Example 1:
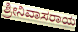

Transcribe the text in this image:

ಶ್ರೀನಿವಾಸರಾಯ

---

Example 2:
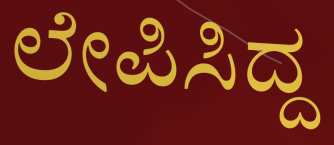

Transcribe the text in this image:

ಲೇಪಿಸಿದ್ದ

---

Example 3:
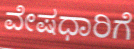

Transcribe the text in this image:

ವೇಷಧಾರಿಗೆ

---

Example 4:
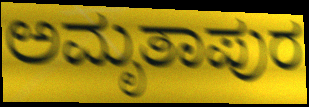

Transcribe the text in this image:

ಅಮೃತಾಪುರ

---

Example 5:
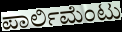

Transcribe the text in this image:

ಪಾರ್ಲಿಮೆಂಟು